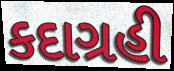
કદાગ્રહી